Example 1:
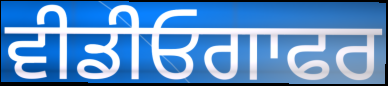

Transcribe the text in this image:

ਵੀਡੀਓਗਾਫਰ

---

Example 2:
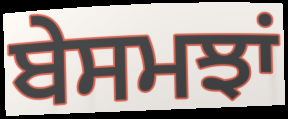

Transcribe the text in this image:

ਬੇਸਮਝਾਂ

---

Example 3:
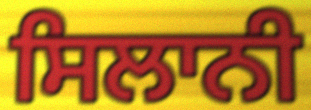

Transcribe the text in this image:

ਸਿਲਾਨੀ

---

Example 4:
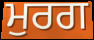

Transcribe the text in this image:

ਮੁਰਗ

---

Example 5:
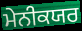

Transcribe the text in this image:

ਮੇਨੀਕਯਰ